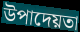
উপাদেয়তা